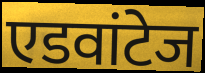
एडवांटेज